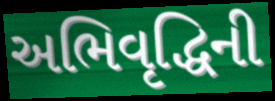
અભિવૃદ્ધિની